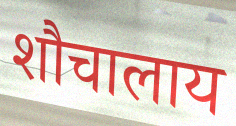
शौचालाय